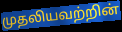
முதலியவற்றின்